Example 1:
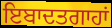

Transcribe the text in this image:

ਇਬਾਦਤਗਾਹਾਂ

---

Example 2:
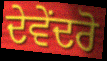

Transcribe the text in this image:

ਦੇਵੇਂਦਰੋ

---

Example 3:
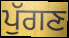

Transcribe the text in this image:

ਪੁੱਗਣ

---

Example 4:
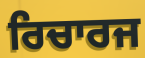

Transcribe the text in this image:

ਰਿਚਾਰਜ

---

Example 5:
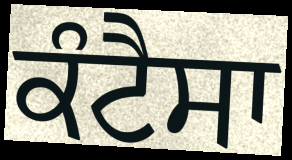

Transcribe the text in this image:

ਕੰਟੈਸਾ